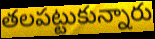
తలపట్టుకున్నారు